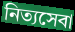
নিত্যসেবা